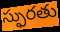
స్ఫురతు